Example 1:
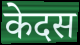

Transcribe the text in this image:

केदस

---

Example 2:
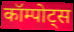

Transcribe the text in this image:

कॉम्पोट्स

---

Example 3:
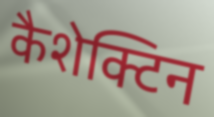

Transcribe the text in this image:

कैशेक्टिन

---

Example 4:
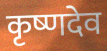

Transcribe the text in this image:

कृष्‍णदेव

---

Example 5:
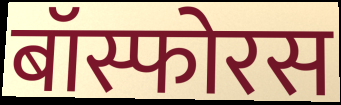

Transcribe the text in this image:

बॉस्फोरस